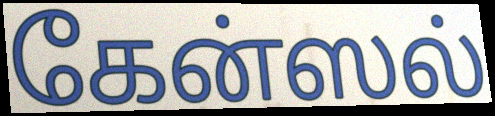
கேன்ஸல்